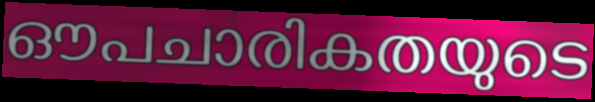
ഔപചാരികതയുടെ